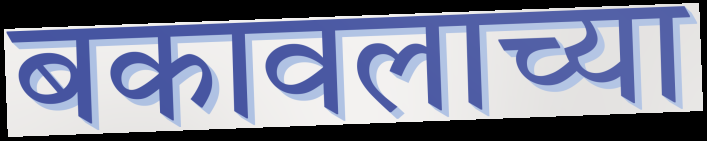
बकावलाच्या